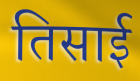
तिसाई